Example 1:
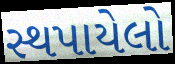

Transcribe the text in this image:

સ્થપાયેલો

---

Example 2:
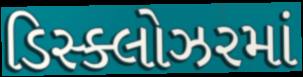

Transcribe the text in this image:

ડિસ્ક્લોઝરમાં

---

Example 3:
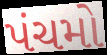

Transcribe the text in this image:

પંચમો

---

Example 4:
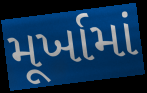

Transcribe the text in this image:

મૂર્ખામાં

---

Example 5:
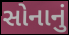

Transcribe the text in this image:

સોનાનું